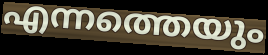
എന്നത്തെയും